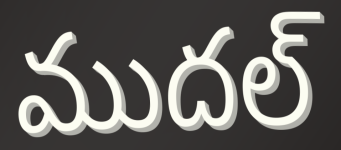
ముదల్